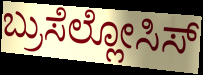
ಬ್ರುಸೆಲ್ಲೋಸಿಸ್